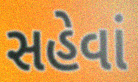
સહેવાં